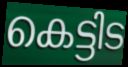
കെട്ടിട